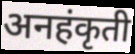
अनहंकृती